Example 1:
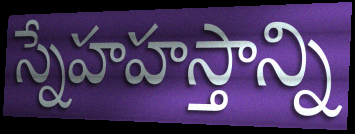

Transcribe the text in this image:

స్నేహహస్తాన్ని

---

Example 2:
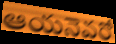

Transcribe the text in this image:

ఆయనెవరో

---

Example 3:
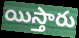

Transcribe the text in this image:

యిస్తారు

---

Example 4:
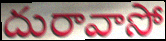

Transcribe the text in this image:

దురావాసో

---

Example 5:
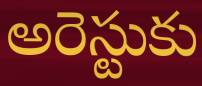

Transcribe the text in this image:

అరెస్టుకు